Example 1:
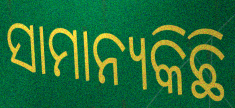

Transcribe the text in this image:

ସାମାନ୍ୟକିଛି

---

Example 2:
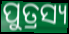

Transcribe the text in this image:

ପୁତ୍ରସ୍ୟ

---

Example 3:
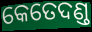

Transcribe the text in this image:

କେତେଦଣ୍ଡ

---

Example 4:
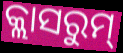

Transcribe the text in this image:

କ୍ଲାସରୁମ୍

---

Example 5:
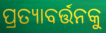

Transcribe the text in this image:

ପ୍ରତ୍ୟାବର୍ତ୍ତନକୁ